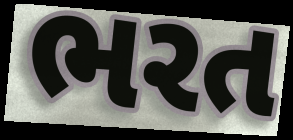
ભરત